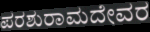
ಪರಶುರಾಮದೇವರ